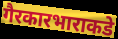
गैरकारभाराकडे